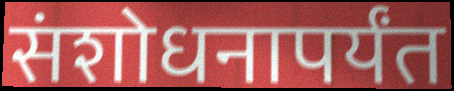
संशोधनापर्यंत